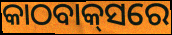
କାଠବାକ୍‍ସରେ